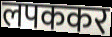
लपककर